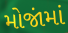
મોજાંમાં